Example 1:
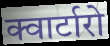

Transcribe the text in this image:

क्वार्टारो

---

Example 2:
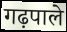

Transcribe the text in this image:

गढ़पाले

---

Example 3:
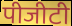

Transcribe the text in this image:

पीजीटी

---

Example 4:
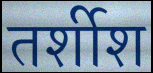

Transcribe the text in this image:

तर्शीश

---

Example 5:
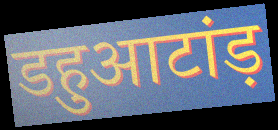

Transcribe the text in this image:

डहुआटांड़